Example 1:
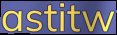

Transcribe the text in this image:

astitw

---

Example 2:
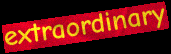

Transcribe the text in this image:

extraordinary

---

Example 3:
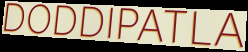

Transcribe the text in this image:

DODDIPATLA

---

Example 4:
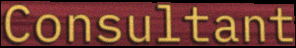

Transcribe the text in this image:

Consultant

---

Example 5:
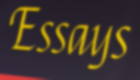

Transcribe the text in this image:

Essays